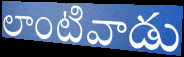
లాంటివాడు